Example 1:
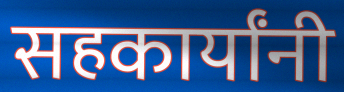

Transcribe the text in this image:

सहकार्यांनी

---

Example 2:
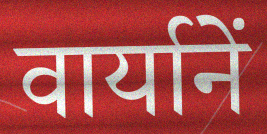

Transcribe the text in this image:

वार्यानें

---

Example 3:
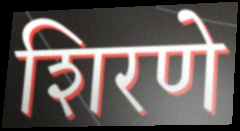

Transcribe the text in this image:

शिरणे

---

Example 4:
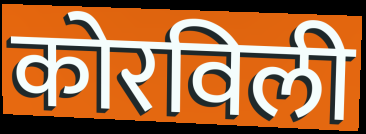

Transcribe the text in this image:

कोरविली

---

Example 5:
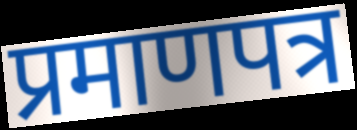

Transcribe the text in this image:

प्रमाणपत्र